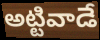
అట్టివాడే